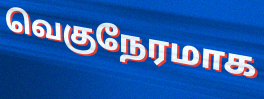
வெகுநேரமாக